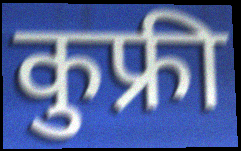
कुफ्री